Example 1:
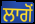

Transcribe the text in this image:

ਲਾਗੋਂ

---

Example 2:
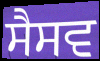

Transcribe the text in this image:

ਸੈਸਵ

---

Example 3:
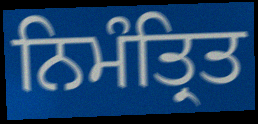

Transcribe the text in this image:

ਨਿਮੰਤ੍ਰਿਤ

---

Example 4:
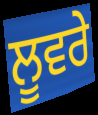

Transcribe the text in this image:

ਲੂਵਰੇ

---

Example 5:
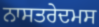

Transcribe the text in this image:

ਨਾਸਤਰੇਦਮਸ